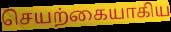
செயற்கையாகிய